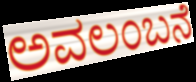
ಅವಲಂಬನೆ